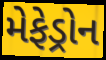
મેફેડ્રોન